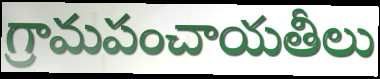
గ్రామపంచాయతీలు